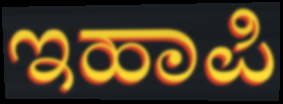
ಇಹಾಪಿ